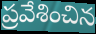
ప్రవేశించిన